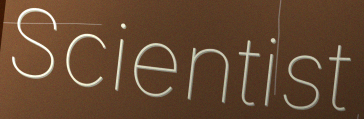
Scientist